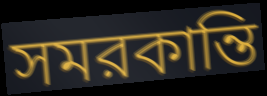
সমরকান্তি